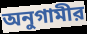
অনুগামীর